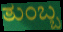
ತುಂಬ್ಬ